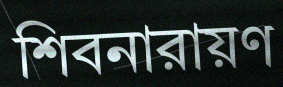
শিবনারায়ণ